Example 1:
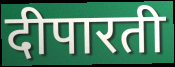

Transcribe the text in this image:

दीपारती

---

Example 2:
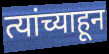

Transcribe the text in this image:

त्यांच्याहून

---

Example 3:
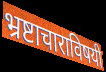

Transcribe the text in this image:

भ्रष्टाचाराविषयी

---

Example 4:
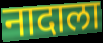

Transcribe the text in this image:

नादाला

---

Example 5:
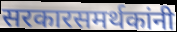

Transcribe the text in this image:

सरकारसमर्थकांनी